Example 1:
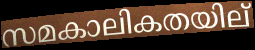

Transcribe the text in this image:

സമകാലികതയില്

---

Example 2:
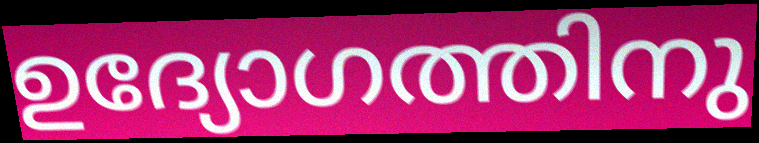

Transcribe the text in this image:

ഉദ്യോഗത്തിനു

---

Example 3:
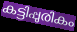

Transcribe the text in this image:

കട്ടിപ്പുരികം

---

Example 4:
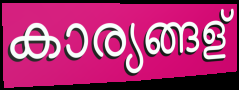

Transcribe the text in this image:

കാര്യങ്ങള്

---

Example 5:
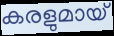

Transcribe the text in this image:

കരളുമായ്